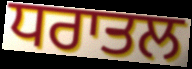
ਧਰਾਤਲ